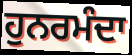
ਹੁਨਰਮੰਦਾ